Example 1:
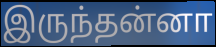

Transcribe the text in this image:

இருந்தன்னா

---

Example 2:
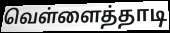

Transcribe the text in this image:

வெள்ளைத்தாடி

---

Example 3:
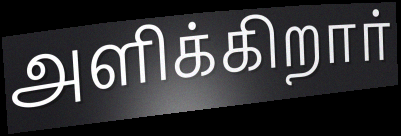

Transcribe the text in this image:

அளிக்கிறார்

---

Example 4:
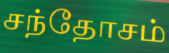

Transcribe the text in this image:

சந்தோசம்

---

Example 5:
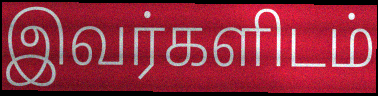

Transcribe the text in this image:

இவர்களிடம்